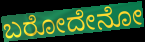
ಬರೋದೇನೋ